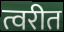
त्वरीत